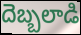
దెబ్బలాడి